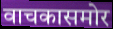
वाचकासमोर